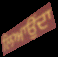
ਲਿਆਉਂਦਾ